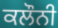
ਕਲੌਨੀ